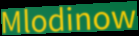
Mlodinow